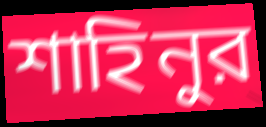
শাহিনুর